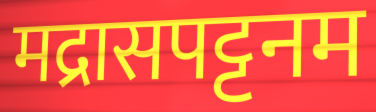
मद्रासपट्टनम